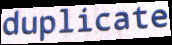
duplicate